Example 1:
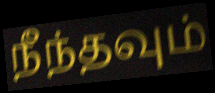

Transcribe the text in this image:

நீந்தவும்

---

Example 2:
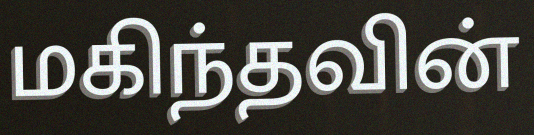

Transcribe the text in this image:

மகிந்தவின்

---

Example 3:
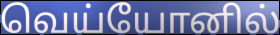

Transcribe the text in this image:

வெய்யோனில்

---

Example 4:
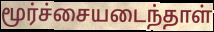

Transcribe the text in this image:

மூர்ச்சையடைந்தாள்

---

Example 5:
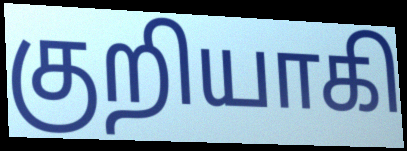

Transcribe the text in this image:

குறியாகி